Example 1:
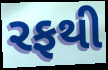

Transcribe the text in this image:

રફથી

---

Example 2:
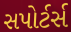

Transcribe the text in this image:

સપોર્ટર્સ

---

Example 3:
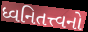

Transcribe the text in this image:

ધ્વનિતત્ત્વનો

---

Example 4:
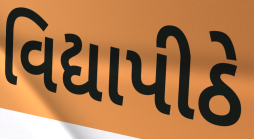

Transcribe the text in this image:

વિદ્યાપીઠે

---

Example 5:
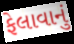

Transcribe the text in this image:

ફેલાવાનું